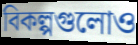
বিকল্পগুলোও